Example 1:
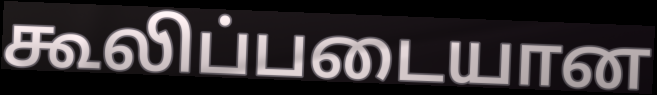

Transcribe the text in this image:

கூலிப்படையான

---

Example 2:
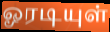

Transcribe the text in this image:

ஓரடியுள்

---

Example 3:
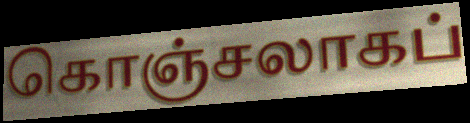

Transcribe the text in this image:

கொஞ்சலாகப்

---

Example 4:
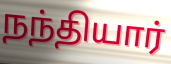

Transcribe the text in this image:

நந்தியார்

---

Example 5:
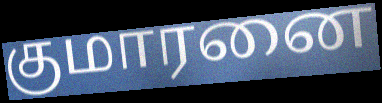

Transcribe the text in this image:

குமாரனை